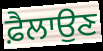
ਫ਼ੈਲਾਉਣ